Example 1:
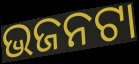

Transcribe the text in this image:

ଭଜନଟା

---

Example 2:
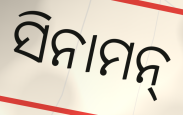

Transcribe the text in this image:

ସିନାମନ୍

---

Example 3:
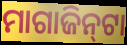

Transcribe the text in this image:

ମାଗାଜିନ୍‌ଟା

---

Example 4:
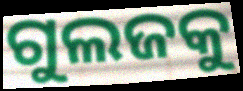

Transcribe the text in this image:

ଗୁଲଜକୁ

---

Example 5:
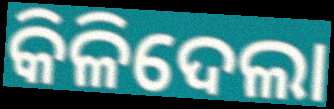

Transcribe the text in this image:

କିଳିଦେଲା